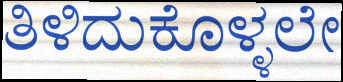
ತಿಳಿದುಕೊಳ್ಳಲೇ